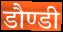
डौण्डी